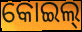
କୋଇଲ୍